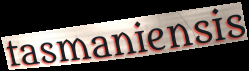
tasmaniensis